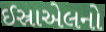
ઈસ્રાએલનો